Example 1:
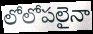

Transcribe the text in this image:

లోలోపలైనా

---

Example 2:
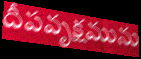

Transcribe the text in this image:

దీపవృక్షమును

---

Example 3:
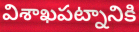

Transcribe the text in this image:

విశాఖపట్నానికి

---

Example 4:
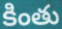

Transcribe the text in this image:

కింతు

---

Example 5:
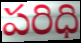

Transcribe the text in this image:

పరిధి